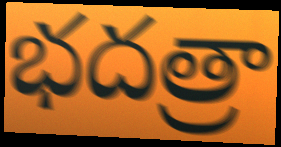
భదత్రా